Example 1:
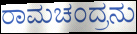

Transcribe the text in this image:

ರಾಮಚಂದ್ರನು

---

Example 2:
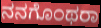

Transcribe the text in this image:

ನನಗೊಂಥರಾ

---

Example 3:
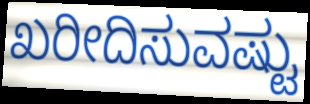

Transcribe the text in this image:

ಖರೀದಿಸುವಷ್ಟು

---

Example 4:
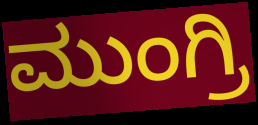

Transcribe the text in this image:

ಮುಂಗ್ರಿ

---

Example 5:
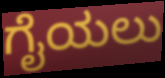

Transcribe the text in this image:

ಗೈಯಲು